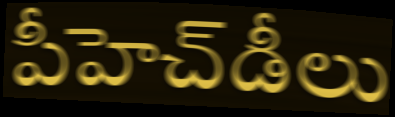
పీహెచ్‌డీలు